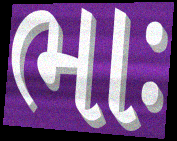
ભાઃ